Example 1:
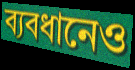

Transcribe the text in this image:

ব্যবধানেও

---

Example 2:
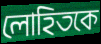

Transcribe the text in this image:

লোহিতকে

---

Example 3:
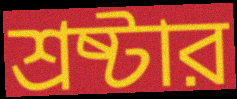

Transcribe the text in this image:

শ্রষ্টার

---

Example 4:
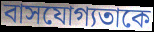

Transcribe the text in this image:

বাসযোগ্যতাকে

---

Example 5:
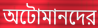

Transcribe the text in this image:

অটোমানদের